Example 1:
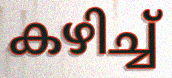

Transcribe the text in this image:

കഴിച്ച്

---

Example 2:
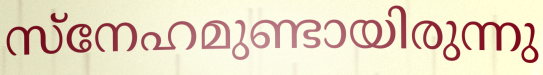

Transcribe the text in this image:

സ്നേഹമുണ്ടായിരുന്നു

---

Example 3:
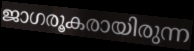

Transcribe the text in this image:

ജാഗരൂകരായിരുന്ന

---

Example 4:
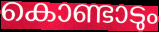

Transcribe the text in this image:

കൊണ്ടാടും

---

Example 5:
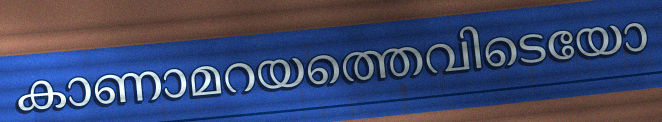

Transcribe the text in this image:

കാണാമറയത്തെവിടെയോ